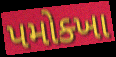
પમોક્ખા